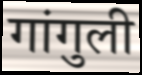
गांगुली